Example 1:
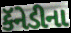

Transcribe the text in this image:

કૅનેડીના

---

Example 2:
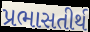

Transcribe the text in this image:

પ્રભાસતીર્થ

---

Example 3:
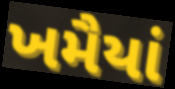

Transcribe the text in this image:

ખમૈયાં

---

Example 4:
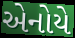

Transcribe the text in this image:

એનોયે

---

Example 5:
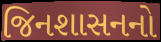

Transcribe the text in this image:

જિનશાસનનો